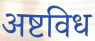
अष्टविध